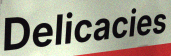
Delicacies